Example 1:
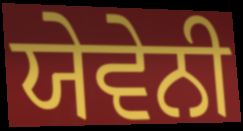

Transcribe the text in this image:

ਯੇਵੇਨੀ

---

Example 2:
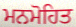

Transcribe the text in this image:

ਮਨਮੋਹਿਤ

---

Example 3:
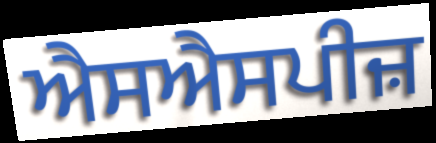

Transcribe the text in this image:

ਐਸਐਸਪੀਜ਼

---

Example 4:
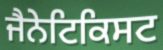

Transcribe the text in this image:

ਜੈਨੇਟਿਕਿਸਟ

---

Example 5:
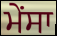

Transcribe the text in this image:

ਮੇਂਸਾ